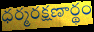
ధర్మరక్షణార్థం